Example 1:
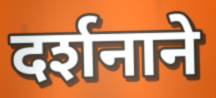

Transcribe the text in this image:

दर्शनाने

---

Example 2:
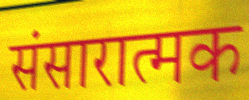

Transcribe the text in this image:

संसारात्मक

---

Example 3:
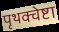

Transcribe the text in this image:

पृथक्चेष्टा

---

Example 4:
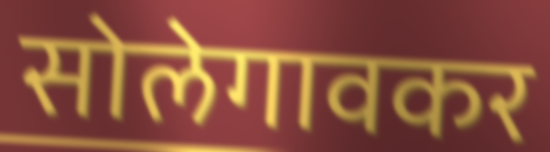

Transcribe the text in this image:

सोलेगावकर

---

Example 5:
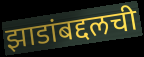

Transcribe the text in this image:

झाडांबद्दलची